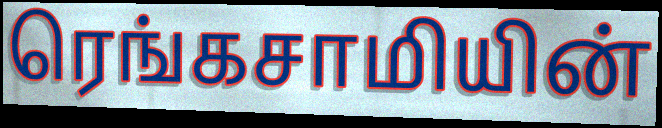
ரெங்கசாமியின்